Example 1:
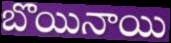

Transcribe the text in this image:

బొయినాయి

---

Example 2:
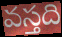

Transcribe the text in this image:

వస్తది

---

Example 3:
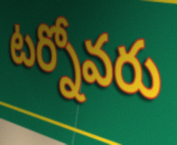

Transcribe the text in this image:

టర్నోవరు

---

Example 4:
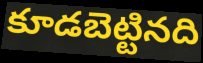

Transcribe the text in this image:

కూడబెట్టినది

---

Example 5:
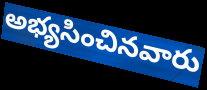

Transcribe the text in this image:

అభ్యసించినవారు